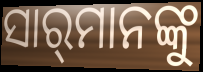
ସାର୍‌ମାନଙ୍କୁ